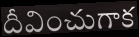
దీవించుగాక